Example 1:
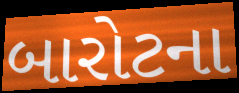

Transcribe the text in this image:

બારોટના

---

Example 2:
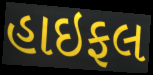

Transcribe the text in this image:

હાઇફલ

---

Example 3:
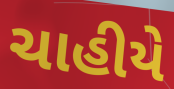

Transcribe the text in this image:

ચાહીયે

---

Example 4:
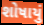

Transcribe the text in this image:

શોષાયું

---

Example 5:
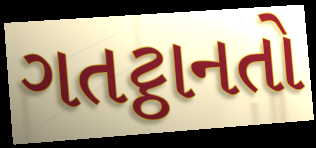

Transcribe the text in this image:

ગતટ્ઠાનતો